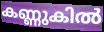
കണ്ണുകിൽ